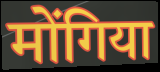
मोंगिया